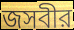
জসবীর